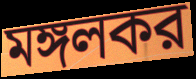
মঙ্গলকর